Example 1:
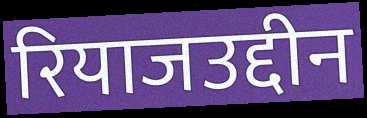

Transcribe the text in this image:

रियाजउद्दीन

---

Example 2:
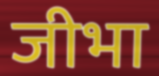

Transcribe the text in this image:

जीभा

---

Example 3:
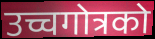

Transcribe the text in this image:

उच्चगोत्रको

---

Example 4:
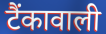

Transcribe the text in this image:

टैंकावाली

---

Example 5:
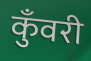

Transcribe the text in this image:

कुँवरी